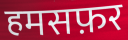
हमसफ़र